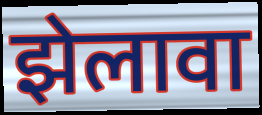
झेलावा